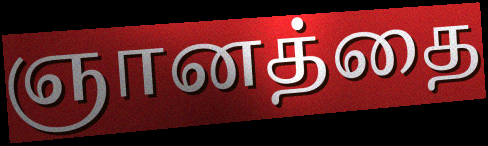
ஞானத்தை